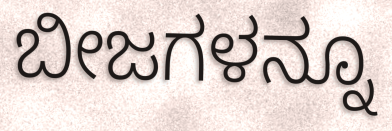
ಬೀಜಗಳನ್ನೂ